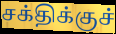
சக்திக்குச்